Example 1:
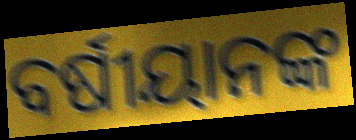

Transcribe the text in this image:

ବର୍ଷୀୟାନଙ୍କ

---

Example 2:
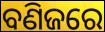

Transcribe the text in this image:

ବଣିଜରେ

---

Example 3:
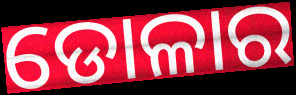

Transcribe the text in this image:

ଡୋଳାର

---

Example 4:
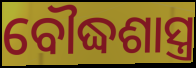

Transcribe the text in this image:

ବୌଦ୍ଧଶାସ୍ତ୍ର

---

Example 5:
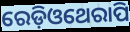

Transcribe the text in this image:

ରେଡ଼ିଓଥେରାପି